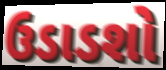
ઉડાડશો